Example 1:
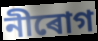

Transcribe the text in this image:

নীৰোগ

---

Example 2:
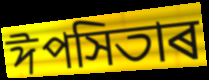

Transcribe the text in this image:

ঈপসিতাৰ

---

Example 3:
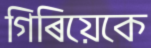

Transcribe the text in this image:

গিৰিয়েকে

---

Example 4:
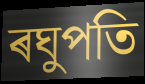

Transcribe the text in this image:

ৰঘুপতি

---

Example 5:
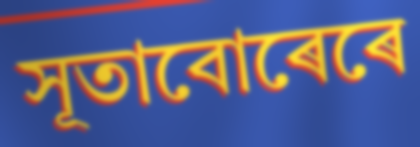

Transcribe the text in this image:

সূতাবোৰেৰে